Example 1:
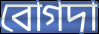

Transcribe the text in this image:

বোগদা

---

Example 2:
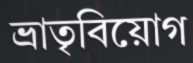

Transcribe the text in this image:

ভ্রাতৃবিয়োগ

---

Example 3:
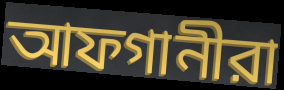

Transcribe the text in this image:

আফগানীরা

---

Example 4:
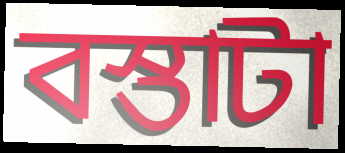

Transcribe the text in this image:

বস্তাটা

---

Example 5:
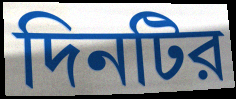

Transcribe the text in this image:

দিনটির